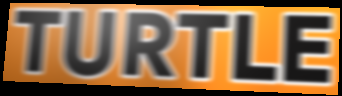
TURTLE